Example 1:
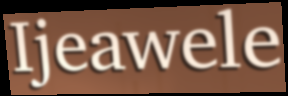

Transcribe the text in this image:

Ijeawele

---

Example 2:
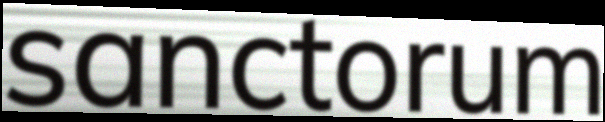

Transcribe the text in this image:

sanctorum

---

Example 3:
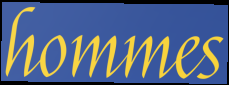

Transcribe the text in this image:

hommes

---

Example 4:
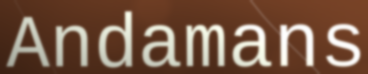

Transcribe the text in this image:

Andamans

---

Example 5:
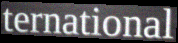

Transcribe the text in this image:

ternational